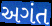
અગંત